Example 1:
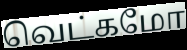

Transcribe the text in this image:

வெட்கமோ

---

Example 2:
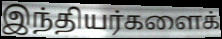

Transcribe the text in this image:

இந்தியர்களைக்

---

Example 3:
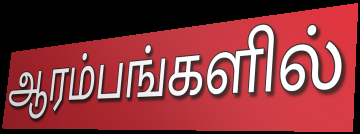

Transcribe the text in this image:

ஆரம்பங்களில்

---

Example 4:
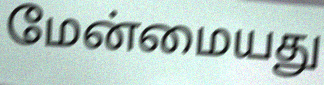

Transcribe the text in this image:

மேன்மையது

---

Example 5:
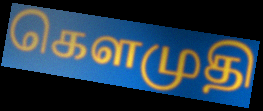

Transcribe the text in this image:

கௌமுதி